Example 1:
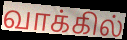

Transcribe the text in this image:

வாக்கில்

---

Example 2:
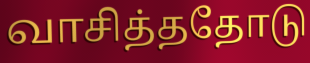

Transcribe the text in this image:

வாசித்ததோடு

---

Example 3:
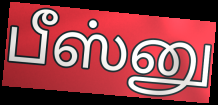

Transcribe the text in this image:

பீஸ்னு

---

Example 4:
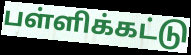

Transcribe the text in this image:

பள்ளிக்கட்டு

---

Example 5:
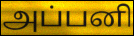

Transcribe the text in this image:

அப்பனி